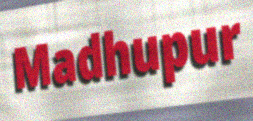
Madhupur